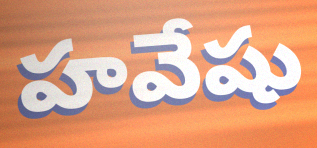
హవేషు